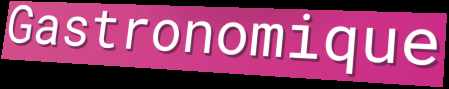
Gastronomique